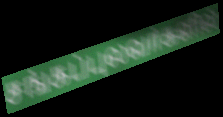
சங்கப்புலவர்களில்